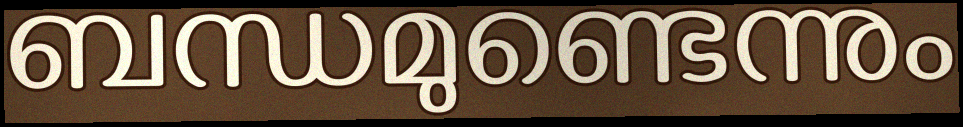
ബന്ധമുണ്ടെന്നും